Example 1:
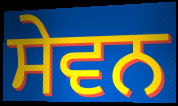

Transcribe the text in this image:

ਸੇਵਨ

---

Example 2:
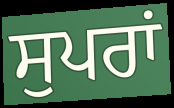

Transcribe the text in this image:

ਸੁਪਰਾਂ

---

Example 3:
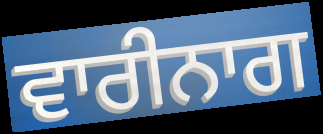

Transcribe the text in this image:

ਵਾਰੀਨਾਗ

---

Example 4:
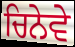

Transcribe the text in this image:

ਚਿਨੇਵੇ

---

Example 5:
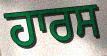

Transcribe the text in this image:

ਹਾਰਸ